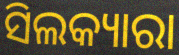
ସିଲକ୍ୟାରା